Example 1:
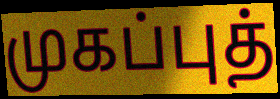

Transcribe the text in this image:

முகப்புத்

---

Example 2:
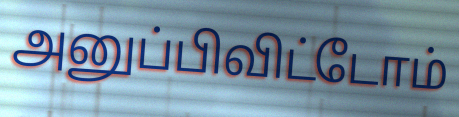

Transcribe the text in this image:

அனுப்பிவிட்டோம்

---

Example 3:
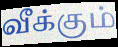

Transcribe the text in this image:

வீக்கும்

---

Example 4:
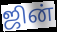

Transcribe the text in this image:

ஜின்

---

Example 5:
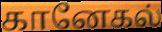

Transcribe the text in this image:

கானேகல்